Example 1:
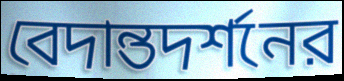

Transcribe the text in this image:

বেদান্তদর্শনের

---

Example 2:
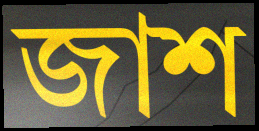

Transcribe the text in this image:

জাশ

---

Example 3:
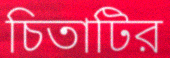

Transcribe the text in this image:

চিতাটির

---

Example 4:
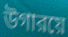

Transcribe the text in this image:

উগারয়ে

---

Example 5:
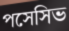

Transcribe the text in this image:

পসেসিভ